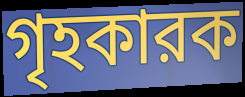
গৃহকারক